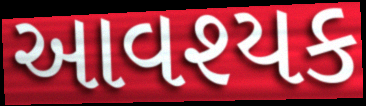
આવશ્યક